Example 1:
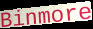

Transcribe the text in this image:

Binmore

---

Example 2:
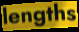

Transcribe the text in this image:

lengths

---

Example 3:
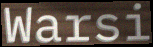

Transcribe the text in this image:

Warsi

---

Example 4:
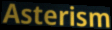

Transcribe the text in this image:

Asterism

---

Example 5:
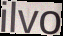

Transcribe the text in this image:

ilvo